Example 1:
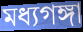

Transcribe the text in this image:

মধ্যগঙ্গা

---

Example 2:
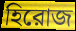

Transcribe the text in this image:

হিরোজ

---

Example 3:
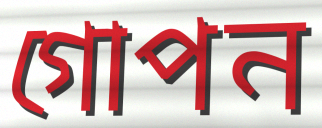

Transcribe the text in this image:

গোপন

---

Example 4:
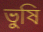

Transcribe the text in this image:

ভুষি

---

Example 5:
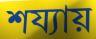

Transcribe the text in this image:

শয্যায়